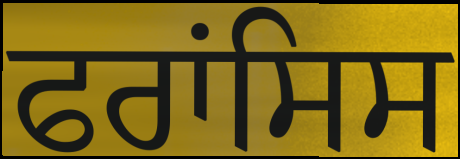
ਫਰਾਂਸਿਸ